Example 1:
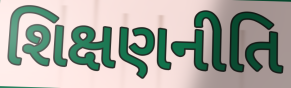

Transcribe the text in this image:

શિક્ષણનીતિ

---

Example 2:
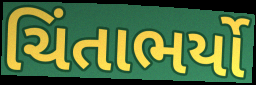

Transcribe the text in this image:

ચિંતાભર્યો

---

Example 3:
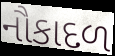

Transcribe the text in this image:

નૌકાદળ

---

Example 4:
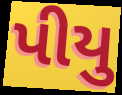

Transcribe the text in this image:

પીયુ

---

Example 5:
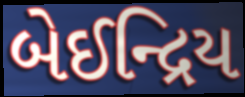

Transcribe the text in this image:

બેઈન્દ્રિય